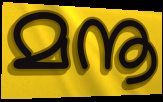
മനൂ